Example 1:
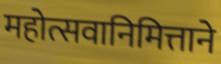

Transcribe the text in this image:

महोत्सवानिमित्ताने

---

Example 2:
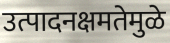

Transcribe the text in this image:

उत्पादनक्षमतेमुळे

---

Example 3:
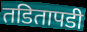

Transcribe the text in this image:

तडितापडी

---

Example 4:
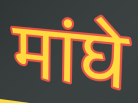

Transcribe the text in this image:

मांघे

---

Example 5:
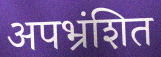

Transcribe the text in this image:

अपभ्रंशित